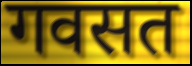
गवसत